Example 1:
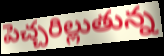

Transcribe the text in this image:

పెచ్చరిల్లుతున్న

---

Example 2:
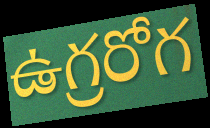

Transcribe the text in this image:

ఉగ్రరోగ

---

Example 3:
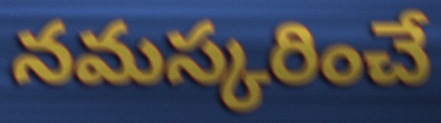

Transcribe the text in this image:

నమస్కరించే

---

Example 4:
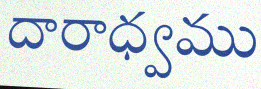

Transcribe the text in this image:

దారాధ్వము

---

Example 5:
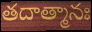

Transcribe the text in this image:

తదాత్మానః